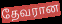
தேவரான